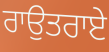
ਰਾਉਤਰਾਏ